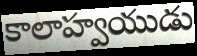
కాలాహ్వయుడు